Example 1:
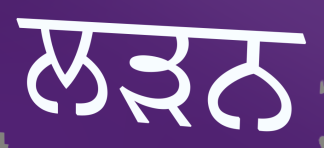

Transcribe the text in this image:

ਲਡ਼ਨ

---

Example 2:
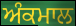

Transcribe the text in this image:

ਅੰਕਮਾਲ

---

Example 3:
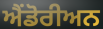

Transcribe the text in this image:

ਐਂਡੋਰੀਅਨ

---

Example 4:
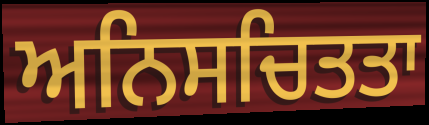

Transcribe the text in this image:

ਅਨਿਸਚਿਤਤਾ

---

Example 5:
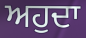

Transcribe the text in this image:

ਅਹੁਦਾ